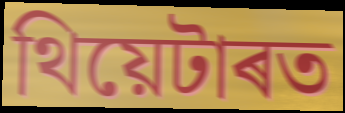
থিয়েটাৰত